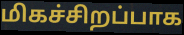
மிகச்சிறப்பாக